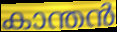
കാന്തൻ